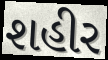
શહીર